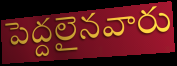
పెద్దలైనవారు